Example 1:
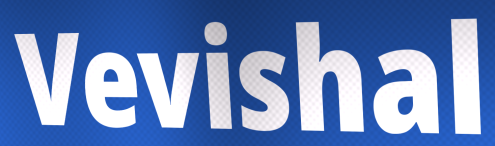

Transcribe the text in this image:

Vevishal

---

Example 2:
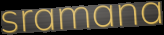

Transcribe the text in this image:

sramana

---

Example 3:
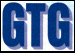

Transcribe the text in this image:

GTG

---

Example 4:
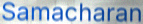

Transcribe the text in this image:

Samacharan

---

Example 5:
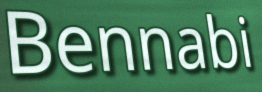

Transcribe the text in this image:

Bennabi